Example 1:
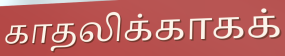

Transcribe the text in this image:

காதலிக்காகக்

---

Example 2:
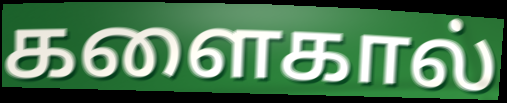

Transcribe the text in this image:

களைகால்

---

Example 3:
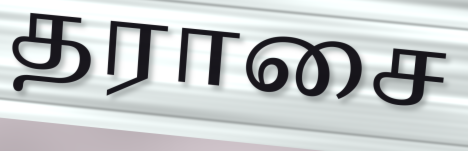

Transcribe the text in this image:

தராசை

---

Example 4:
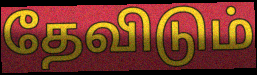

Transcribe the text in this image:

தேவிடும்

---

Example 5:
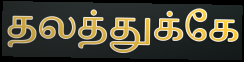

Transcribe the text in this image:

தலத்துக்கே